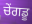
ਚੇਂਗਡੂ